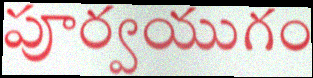
పూర్వయుగం